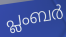
പ്ലംബർ